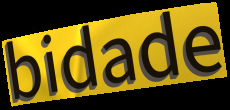
bidade